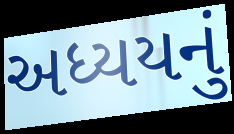
અધ્યયનું